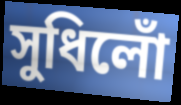
সুধিলোঁ